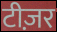
टीज़र